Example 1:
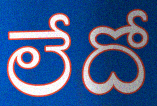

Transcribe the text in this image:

లేదో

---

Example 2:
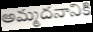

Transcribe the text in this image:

అమ్మదనానికి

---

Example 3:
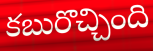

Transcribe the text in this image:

కబురొచ్చింది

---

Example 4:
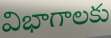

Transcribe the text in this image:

విభాగాలకు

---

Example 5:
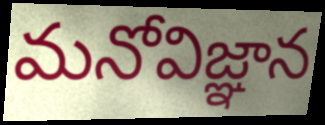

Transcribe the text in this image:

మనోవిజ్ఞాన